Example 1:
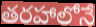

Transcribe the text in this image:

తరహాలోనే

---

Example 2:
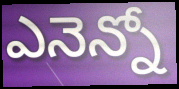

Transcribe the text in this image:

ఎనెన్నో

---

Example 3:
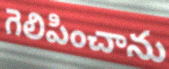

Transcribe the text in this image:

గెలిపించాను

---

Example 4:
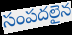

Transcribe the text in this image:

సంపదలైన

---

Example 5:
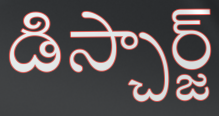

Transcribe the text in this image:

డిస్చార్జ్